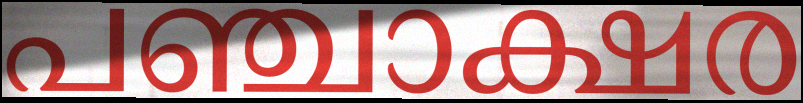
പഞ്ചാക്ഷര